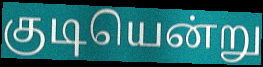
குடியென்று